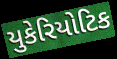
યુકેરિયોટિક